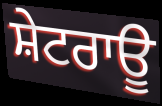
ਸ਼ੇਟਰਾਊ